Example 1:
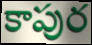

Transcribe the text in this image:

కాపుర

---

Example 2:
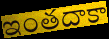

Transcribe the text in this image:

ఇంతదాకా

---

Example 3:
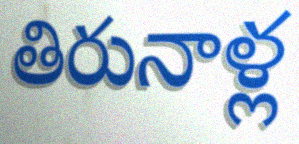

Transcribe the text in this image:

తిరునాళ్ల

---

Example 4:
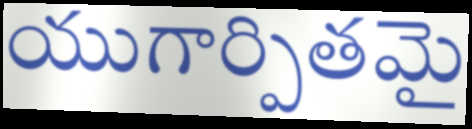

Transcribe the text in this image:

యుగార్పితమై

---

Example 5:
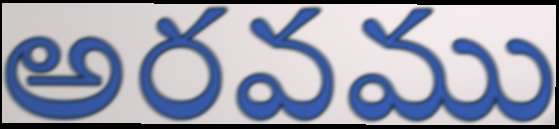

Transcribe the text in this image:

అరవము